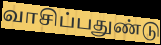
வாசிப்பதுண்டு